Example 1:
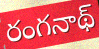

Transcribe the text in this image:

రంగనాథ్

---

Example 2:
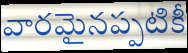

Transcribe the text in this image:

వారమైనప్పటికీ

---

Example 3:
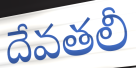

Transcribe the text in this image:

దేవతలీ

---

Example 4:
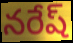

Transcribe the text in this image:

నరేష్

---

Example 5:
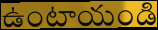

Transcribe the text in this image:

ఉంటాయండి